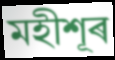
মহীশূৰ